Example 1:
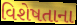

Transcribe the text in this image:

વિશેષતાના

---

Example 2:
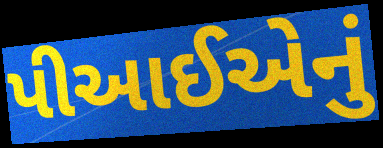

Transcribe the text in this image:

પીઆઈએનું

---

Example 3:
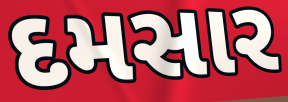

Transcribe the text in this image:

દમસાર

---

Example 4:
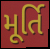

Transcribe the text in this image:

મૂર્તિ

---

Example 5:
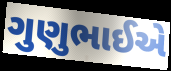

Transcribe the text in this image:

ગુણુભાઈએ